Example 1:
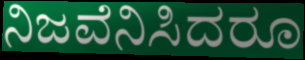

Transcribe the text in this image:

ನಿಜವೆನಿಸಿದರೂ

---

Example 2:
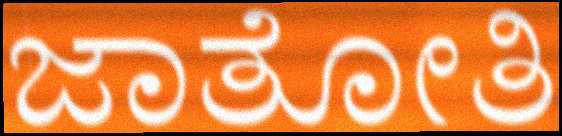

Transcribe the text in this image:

ಜಾತೋತಿ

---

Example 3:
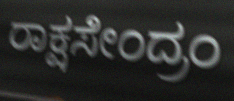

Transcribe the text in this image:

ರಾಕ್ಷಸೇಂದ್ರಂ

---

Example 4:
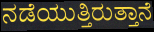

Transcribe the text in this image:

ನಡೆಯುತ್ತಿರುತ್ತಾನೆ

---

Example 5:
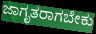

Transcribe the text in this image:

ಜಾಗೃತರಾಗಬೇಕು